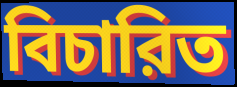
বিচারিত